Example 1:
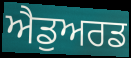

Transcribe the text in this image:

ਐਡੁਅਰਡ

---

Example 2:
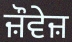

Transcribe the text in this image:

ਜ਼ੌਵੇਜ਼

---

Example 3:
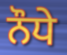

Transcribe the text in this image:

ਨੌਧੇ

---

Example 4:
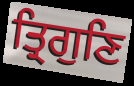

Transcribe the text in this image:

ਤ੍ਰਿਗੁਣਿ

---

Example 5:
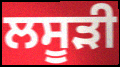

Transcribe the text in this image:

ਲਸੂੜੀ